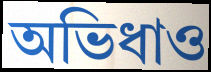
অভিধাও